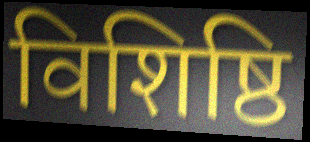
विशिष्ठि